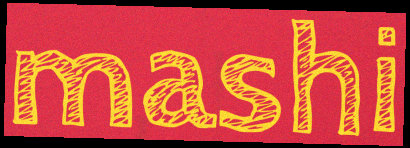
mashi